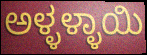
ಅಳ್ಳಳ್ಳಾಯಿ